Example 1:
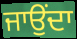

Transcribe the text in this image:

ਜਾਉਂਦਾ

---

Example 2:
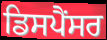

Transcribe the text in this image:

ਡਿਸਪੈਂਸਰ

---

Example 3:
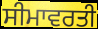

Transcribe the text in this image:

ਸੀਮਾਵਰਤੀ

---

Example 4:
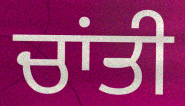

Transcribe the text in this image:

ਚਾਂਤੀ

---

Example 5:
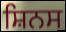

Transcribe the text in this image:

ਸ਼ਿਨਸ